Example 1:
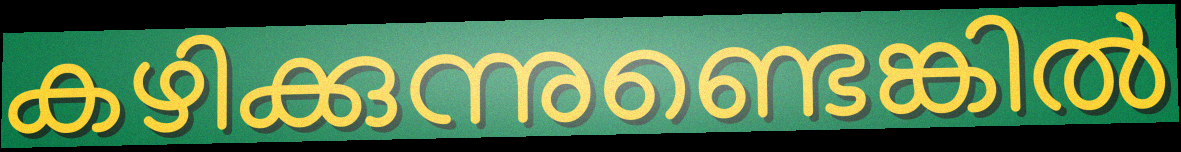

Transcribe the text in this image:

കഴിക്കുന്നുണ്ടെങ്കിൽ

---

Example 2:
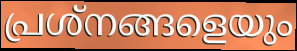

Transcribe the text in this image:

പ്രശ്നങ്ങളെയും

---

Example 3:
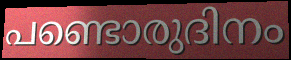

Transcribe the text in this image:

പണ്ടൊരുദിനം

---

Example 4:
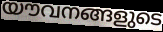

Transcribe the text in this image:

യൗവനങ്ങളുടെ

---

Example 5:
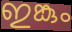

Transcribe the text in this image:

ഇങ്കും